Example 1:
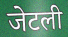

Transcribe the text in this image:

जेटली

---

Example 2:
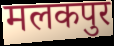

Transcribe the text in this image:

मलकपुर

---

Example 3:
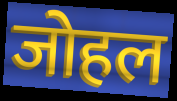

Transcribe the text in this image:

जोहल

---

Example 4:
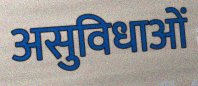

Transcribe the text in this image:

असुविधाओं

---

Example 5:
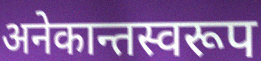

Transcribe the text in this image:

अनेकान्तस्वरूप